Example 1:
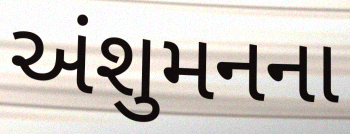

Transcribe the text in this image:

અંશુમનના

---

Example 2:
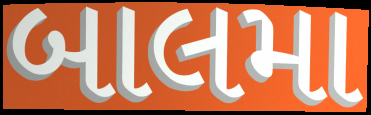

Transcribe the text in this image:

બાલમા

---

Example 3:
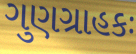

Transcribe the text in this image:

ગુણગ્રાહકઃ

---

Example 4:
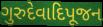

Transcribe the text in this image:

ગુરુદેવાદિપૂજન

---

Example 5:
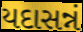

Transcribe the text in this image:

યદાસન્નં